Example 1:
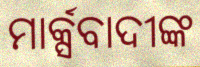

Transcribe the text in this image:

ମାର୍କ୍ସବାଦୀଙ୍କ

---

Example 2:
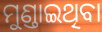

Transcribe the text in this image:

ମୁଣ୍ଡାଇଥିବା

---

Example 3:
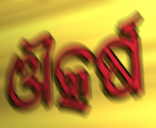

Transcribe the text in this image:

ଔତ୍କର୍ଷ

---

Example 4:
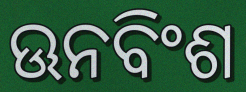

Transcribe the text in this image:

ଊନବିଂଶ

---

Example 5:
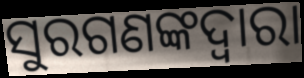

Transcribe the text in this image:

ସୁରଗଣଙ୍କଦ୍ୱାରା